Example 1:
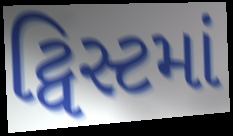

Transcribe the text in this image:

ટ્વિસ્ટમાં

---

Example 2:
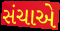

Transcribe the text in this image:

સંચાએ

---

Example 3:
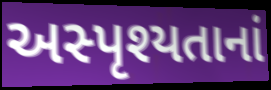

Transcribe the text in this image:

અસ્પૃશ્યતાનાં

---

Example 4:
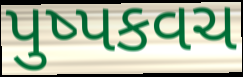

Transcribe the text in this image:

પુષ્પકવચ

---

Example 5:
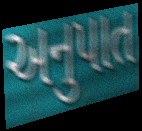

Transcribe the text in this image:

અનુપાત